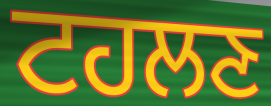
ਟਹਲਣ